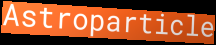
Astroparticle